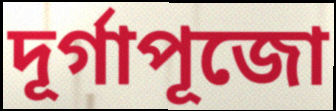
দূর্গাপূজো